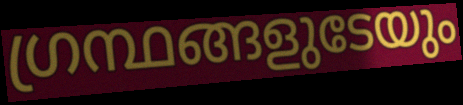
ഗ്രന്ഥങ്ങളുടേയും